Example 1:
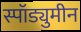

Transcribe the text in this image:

स्पॉड्युमीन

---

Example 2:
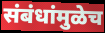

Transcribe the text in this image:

संबंधांमुळेच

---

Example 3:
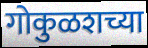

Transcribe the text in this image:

गोकुळशच्या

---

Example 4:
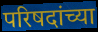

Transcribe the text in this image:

परिषदांच्या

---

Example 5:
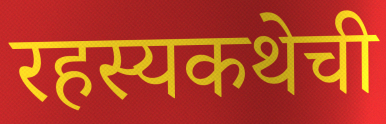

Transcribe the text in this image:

रहस्यकथेची